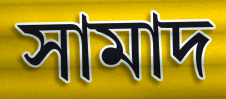
সামাদ